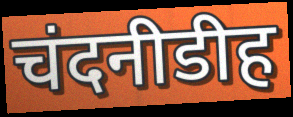
चंदनीडीह